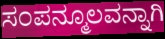
ಸಂಪನ್ಮೂಲವನ್ನಾಗಿ